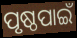
ପୃଷ୍ଠପାଇଁ